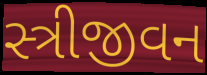
સ્ત્રીજીવન